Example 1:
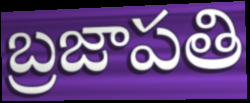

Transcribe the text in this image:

బ్రజాపతి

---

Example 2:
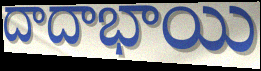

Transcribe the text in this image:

దాదాభాయి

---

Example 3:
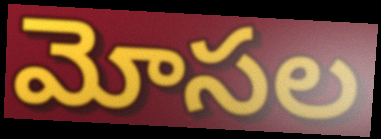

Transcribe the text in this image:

మోసల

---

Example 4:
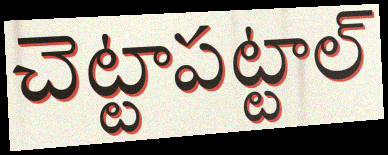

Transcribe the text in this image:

చెట్టాపట్టాల్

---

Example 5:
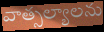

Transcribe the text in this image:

వాత్సల్యాలను